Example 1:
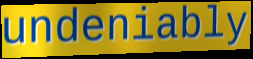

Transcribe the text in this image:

undeniably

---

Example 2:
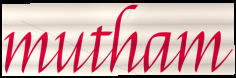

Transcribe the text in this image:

mutham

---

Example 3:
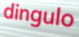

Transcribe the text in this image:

dingulo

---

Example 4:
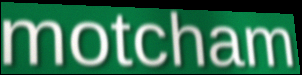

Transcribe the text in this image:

motcham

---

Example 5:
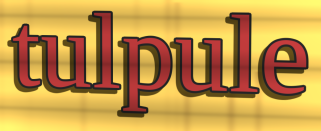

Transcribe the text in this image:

tulpule